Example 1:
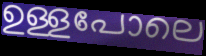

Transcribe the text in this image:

ഉള്ളപോലെ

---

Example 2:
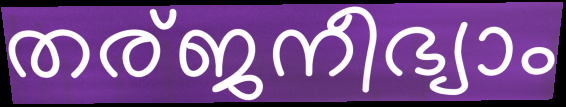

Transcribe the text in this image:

തര്ജനീഭ്യാം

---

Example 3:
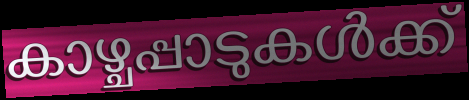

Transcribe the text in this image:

കാഴ്ചപ്പാടുകൾക്ക്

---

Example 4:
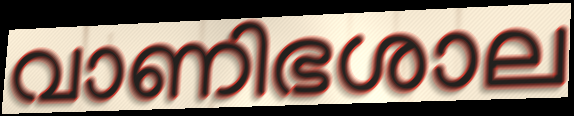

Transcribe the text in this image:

വാണിഭശാല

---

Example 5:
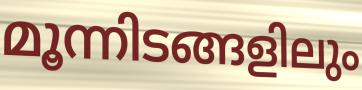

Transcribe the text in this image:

മൂന്നിടങ്ങളിലും